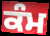
ਕੰਮ